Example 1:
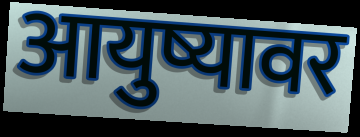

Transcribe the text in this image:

आयुष्यावर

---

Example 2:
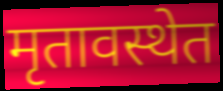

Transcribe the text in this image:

मृतावस्थेत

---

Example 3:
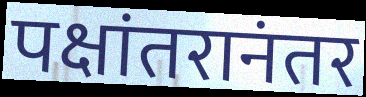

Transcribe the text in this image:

पक्षांतरानंतर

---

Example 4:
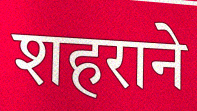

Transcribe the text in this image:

शहराने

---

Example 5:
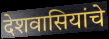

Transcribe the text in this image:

देशवासियांचे